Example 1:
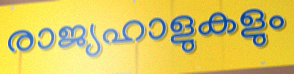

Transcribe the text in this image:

രാജ്യഹാളുകളും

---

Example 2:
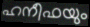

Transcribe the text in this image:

ഹനീഫയും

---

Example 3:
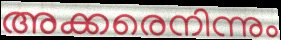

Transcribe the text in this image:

അക്കരെനിന്നും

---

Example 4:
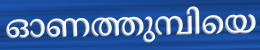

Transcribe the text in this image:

ഓണത്തുമ്പിയെ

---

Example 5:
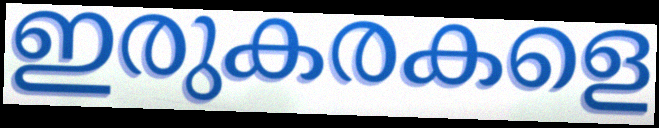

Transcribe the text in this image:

ഇരുകരകളെ